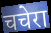
चचेरा